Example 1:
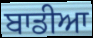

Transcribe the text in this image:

ਬਾਡੀਆ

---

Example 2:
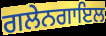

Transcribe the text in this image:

ਗਲੇਨਗਾਇਲ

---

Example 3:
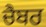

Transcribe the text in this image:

ਚੈਬਰ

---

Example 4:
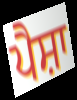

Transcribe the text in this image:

ਪੈਸ਼ਾ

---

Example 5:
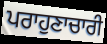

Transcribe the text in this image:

ਪਰਾਹੁਣਾਚਾਰੀ